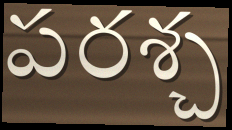
పరశ్చ